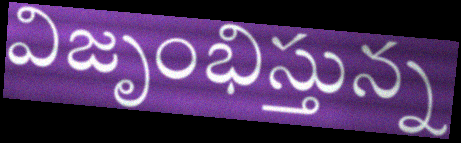
విజృంభిస్తున్న